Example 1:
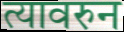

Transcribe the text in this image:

त्यावरुन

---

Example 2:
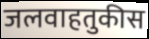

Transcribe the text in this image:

जलवाहतुकीस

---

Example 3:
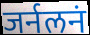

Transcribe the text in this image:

जर्नलनं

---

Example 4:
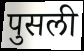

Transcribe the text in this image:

पुसली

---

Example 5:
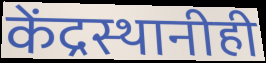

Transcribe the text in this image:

केंद्रस्थानीही